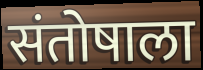
संतोषाला